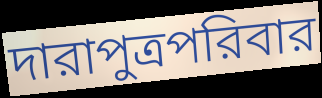
দারাপুত্রপরিবার